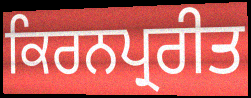
ਕਿਰਨਪ੍ਰਰੀਤ